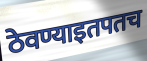
ठेवण्याइतपतच